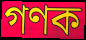
গণক